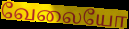
வேலையோ